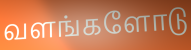
வளங்களோடு